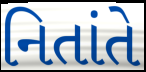
નિતાંતે